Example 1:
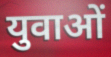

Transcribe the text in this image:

युवाओं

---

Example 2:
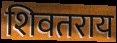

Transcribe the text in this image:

शिवतराय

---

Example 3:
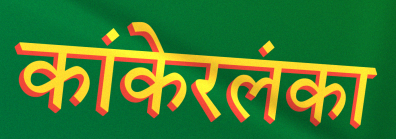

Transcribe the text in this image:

कांकेरलंका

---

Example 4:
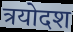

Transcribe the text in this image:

त्रयोदश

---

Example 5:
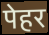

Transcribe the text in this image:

पेहर